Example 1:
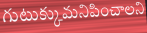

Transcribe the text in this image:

గుటుక్కుమనిపించాలని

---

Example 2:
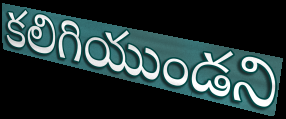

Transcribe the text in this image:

కలిగియుండని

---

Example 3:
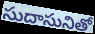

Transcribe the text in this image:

సుదాసునితో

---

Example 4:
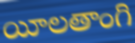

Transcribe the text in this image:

యీలతాంగి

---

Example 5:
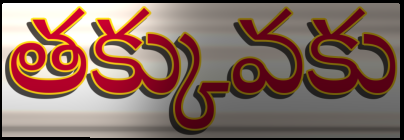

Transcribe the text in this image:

తక్కువకు